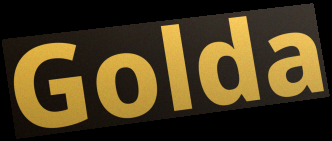
Golda